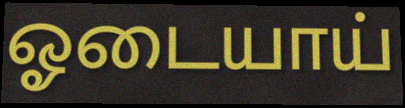
ஓடையாய்